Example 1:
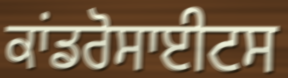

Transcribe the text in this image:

ਕਾਂਡਰੋਸਾਈਟਸ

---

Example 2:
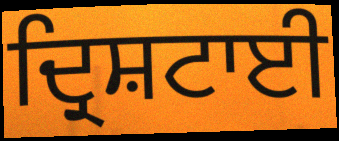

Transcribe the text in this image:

ਦ੍ਰਿਸ਼ਟਾਈ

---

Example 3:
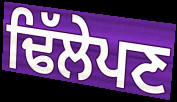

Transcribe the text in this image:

ਢਿੱਲੇਪਣ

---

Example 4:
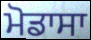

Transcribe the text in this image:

ਮੋਡਾਸਾ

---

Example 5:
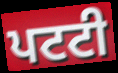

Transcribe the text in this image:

ਪਟਟੀ